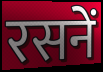
रसनें